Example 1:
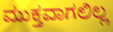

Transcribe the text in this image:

ಮುಕ್ತವಾಗಲಿಲ್ಲ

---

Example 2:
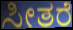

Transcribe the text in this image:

ಸೀತರೆ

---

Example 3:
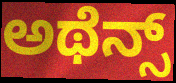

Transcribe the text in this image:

ಅಥೆನ್ಸ್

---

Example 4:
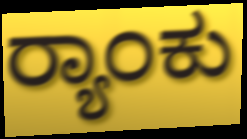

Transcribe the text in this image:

ರ್‍ಯಾಂಕು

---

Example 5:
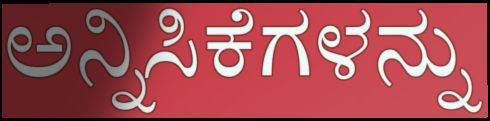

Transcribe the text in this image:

ಅನ್ನಿಸಿಕೆಗಳನ್ನು